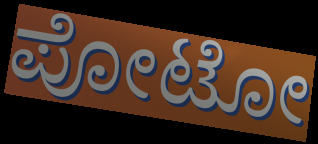
ಪೋಟೋ